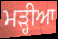
ਮੜ੍ਹੀਆ